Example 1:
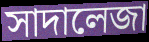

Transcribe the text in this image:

সাদালেজা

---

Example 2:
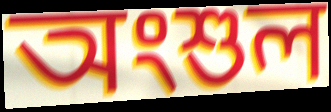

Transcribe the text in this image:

অংশুল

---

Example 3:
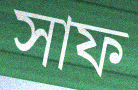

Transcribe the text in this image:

সাফ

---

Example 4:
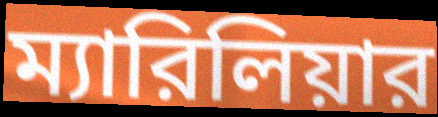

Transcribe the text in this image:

ম্যারিলিয়ার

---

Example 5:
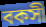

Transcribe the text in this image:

বকসী